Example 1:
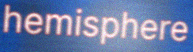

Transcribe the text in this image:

hemisphere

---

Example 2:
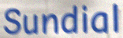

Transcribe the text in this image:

Sundial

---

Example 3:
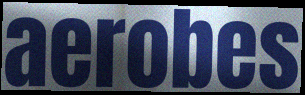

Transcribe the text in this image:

aerobes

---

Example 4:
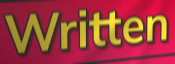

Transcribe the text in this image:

Written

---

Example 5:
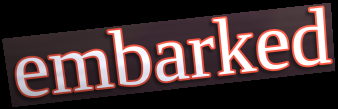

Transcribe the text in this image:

embarked